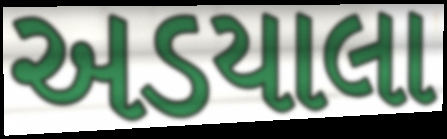
અડયાલા